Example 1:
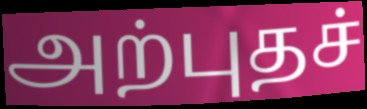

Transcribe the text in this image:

அற்புதச்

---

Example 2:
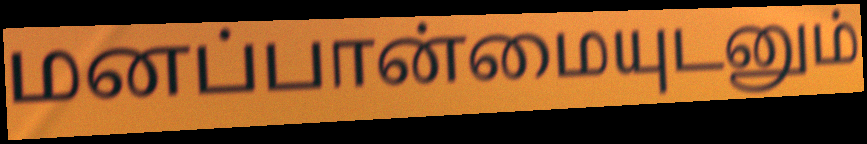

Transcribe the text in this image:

மனப்பான்மையுடனும்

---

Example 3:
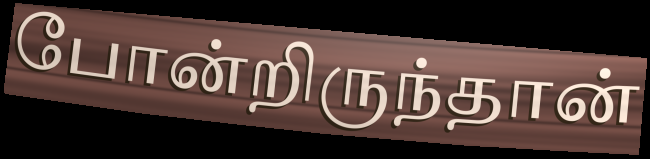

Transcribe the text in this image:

போன்றிருந்தான்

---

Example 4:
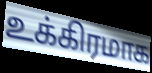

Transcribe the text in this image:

உக்கிரமாக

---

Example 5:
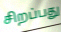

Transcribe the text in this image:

சிறப்பது